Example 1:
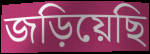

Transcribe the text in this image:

জড়িয়েছি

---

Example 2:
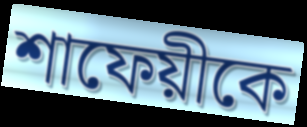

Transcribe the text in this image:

শাফেয়ীকে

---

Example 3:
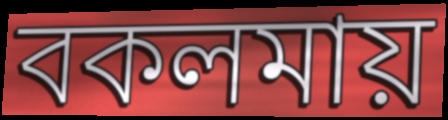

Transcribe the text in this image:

বকলমায়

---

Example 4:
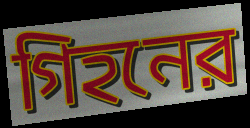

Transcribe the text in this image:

গিহনের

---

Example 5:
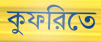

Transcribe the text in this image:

কুফরিতে